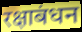
रक्षाबंधन